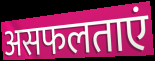
असफलताएं